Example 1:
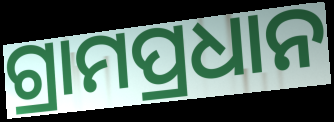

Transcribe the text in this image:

ଗ୍ରାମପ୍ରଧାନ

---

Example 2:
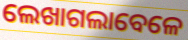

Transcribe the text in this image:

ଲେଖାଗଲାବେଳେ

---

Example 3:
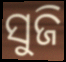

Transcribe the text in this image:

ସୁଜି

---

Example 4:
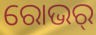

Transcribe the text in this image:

ରୋଭର୍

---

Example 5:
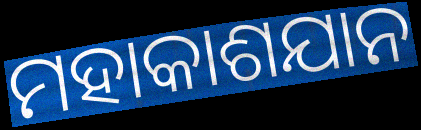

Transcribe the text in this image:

ମହାକାଶଯାନ